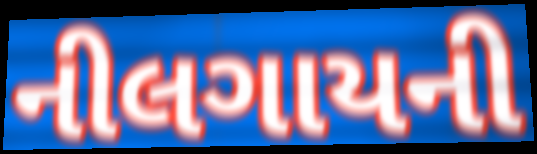
નીલગાયની